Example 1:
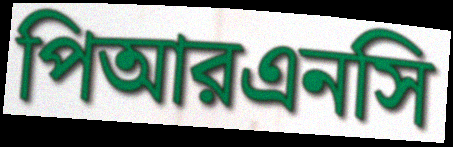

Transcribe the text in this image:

পিআরএনসি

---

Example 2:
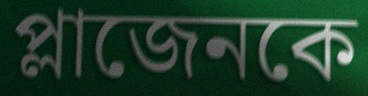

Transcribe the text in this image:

প্লাজেনকে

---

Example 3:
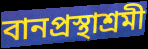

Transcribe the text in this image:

বানপ্রস্থাশ্রমী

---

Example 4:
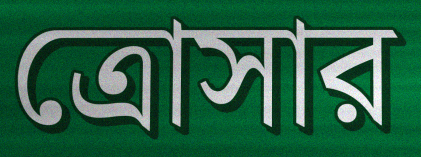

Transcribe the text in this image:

ত্রোসার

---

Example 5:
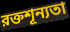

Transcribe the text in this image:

রক্তশূন্যতা